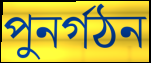
পুনৰ্গঠন